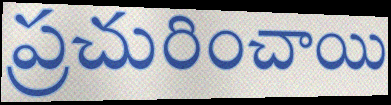
ప్రచురించాయి